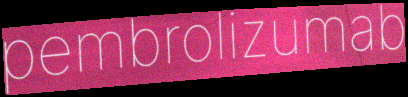
pembrolizumab